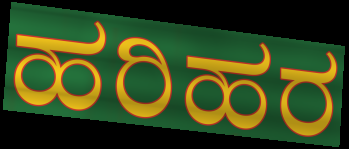
ಹರಿಹರ